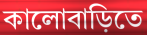
কালোবাড়িতে